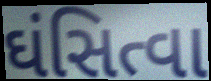
ઘંસિત્વા